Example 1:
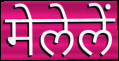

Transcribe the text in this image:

मेलेलें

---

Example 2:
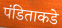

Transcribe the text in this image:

पंडिताकडे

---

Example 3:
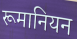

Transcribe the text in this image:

रूमानियन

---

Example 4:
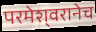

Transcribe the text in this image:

परमेश्वरानेच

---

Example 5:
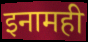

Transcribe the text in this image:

इनामही